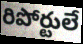
రిపోర్టులే